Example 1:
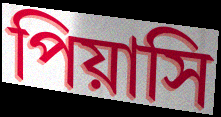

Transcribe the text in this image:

পিয়াসি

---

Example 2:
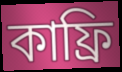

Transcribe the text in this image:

কাফ্রি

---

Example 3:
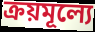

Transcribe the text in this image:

ক্রয়মূল্যে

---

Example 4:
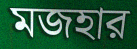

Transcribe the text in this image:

মজহার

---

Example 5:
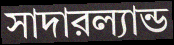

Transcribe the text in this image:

সাদারল্যান্ড